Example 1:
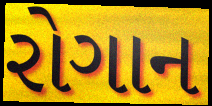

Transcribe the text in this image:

રોગાન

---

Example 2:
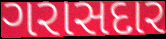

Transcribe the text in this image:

ગરાસદાર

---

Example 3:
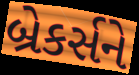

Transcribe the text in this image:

બ્રેકર્સને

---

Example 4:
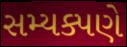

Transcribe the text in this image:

સમ્યક્પણે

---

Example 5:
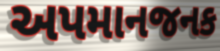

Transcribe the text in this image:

અપમાનજનક